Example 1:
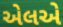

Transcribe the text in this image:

એલએ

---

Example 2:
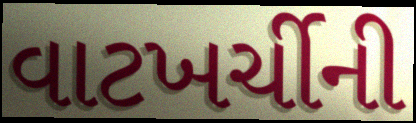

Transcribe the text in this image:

વાટખર્ચીની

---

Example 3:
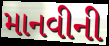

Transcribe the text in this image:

માનવીની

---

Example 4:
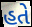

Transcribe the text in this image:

હતે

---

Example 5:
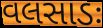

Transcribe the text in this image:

વલસાડઃ